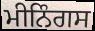
ਮੀਨਿੰਗਸ